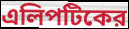
এলিপটিকের